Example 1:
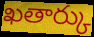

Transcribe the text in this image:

ఖతార్కు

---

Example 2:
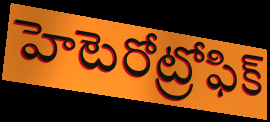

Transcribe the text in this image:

హెటెరోట్రోఫిక్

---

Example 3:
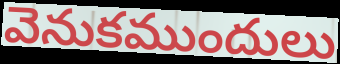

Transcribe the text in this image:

వెనుకముందులు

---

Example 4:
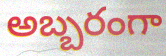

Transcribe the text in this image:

అబ్బరంగా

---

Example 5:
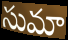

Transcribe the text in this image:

సుమా